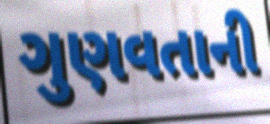
ગુણવતાની